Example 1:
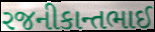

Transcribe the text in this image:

રજનીકાન્તભાઈ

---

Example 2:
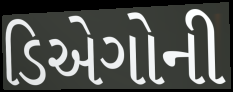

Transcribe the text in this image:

ડિએગોની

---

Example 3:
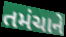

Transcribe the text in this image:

તમંચાને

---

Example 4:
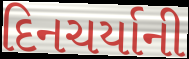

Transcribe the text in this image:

દિનચર્યાની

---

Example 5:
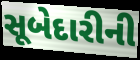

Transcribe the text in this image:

સૂબેદારીની